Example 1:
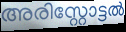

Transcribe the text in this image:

അരിസ്റ്റോട്ടൽ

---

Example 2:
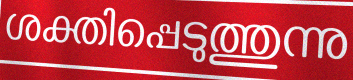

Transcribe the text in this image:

ശക്തിപ്പെടുത്തുന്നു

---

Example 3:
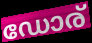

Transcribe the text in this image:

ഡോര്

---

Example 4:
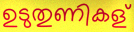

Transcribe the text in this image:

ഉടുതുണികള്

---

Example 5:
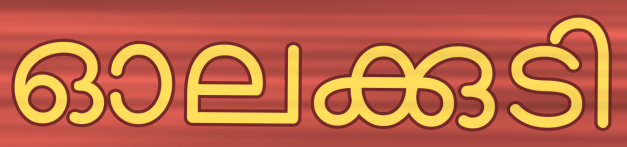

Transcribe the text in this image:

ഓലക്കുടി